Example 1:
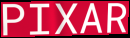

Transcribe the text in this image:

PIXAR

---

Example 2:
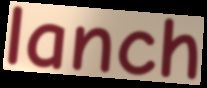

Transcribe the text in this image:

lanch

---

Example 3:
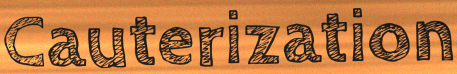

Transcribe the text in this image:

Cauterization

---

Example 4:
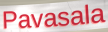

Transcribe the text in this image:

Pavasala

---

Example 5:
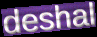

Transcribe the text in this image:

deshal